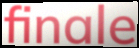
finale